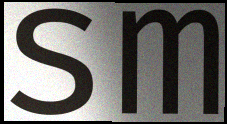
sm